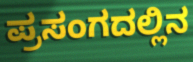
ಪ್ರಸಂಗದಲ್ಲಿನ